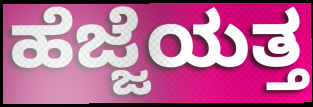
ಹೆಜ್ಜೆಯತ್ತ